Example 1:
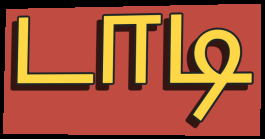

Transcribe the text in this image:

டாடி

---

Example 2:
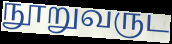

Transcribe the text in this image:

நூறுவருட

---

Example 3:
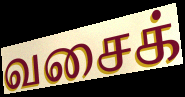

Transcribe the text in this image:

வசைக்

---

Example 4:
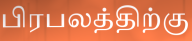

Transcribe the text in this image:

பிரபலத்திற்கு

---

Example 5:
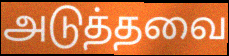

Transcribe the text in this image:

அடுத்தவை